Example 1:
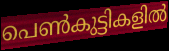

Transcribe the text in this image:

പെൺകുട്ടികളിൽ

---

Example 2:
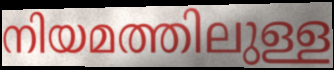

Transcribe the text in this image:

നിയമത്തിലുള്ള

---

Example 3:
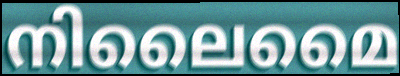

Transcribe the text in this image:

നിലൈമൈ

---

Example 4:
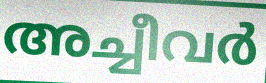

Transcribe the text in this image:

അച്ചീവർ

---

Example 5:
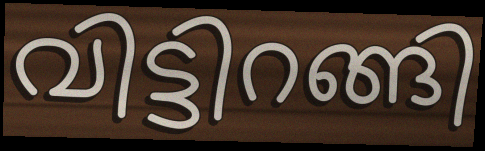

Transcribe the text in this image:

വിട്ടിറങ്ങി